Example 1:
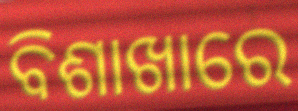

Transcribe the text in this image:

ବିଶାଖାରେ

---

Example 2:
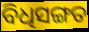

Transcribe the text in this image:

ବିଧିସଙ୍ଗତ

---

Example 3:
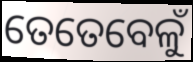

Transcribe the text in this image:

ତେତେବେଳୁଁ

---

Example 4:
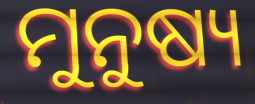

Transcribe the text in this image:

ମୁନୁଷ୍ୟ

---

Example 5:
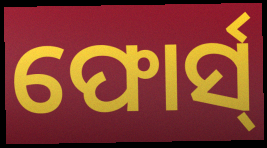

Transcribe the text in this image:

ଫୋର୍ସ୍